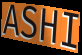
ASHI